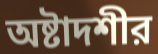
অষ্টাদশীর